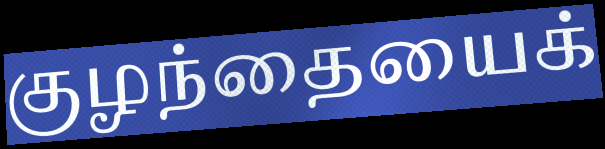
குழந்தையைக்